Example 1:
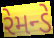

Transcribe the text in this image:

રેમન્ડે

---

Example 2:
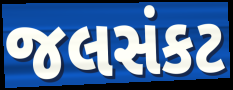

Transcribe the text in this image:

જલસંકટ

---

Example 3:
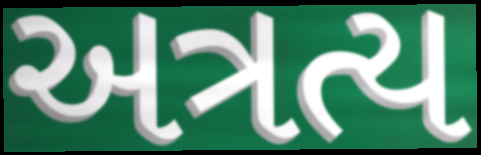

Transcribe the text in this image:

અત્રત્ય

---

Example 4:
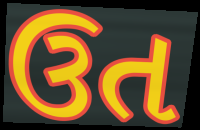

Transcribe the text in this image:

ઉત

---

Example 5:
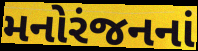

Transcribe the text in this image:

મનોરંજનનાં